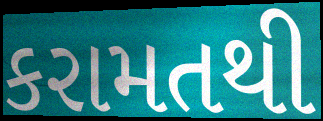
કરામતથી